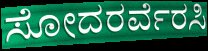
ಸೋದರರ್ವೆರಸಿ